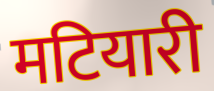
मटियारी